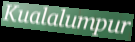
Kualalumpur